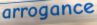
arrogance